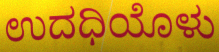
ಉದಧಿಯೊಳು